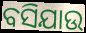
ବସିଯାଉ